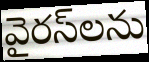
వైరస్‌లను